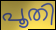
പൂതി